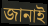
জানাই